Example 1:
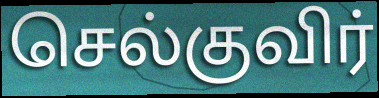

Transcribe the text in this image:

செல்குவிர்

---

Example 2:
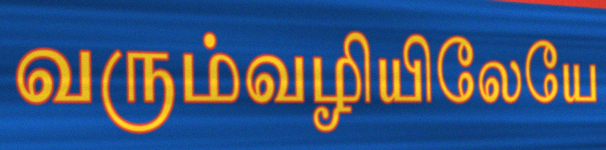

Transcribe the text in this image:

வரும்வழியிலேயே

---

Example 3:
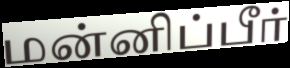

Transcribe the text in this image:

மன்னிப்பீர்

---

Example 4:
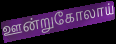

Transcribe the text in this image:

ஊன்றுகோலாய்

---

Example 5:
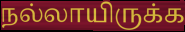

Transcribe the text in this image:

நல்லாயிருக்க